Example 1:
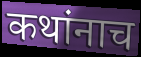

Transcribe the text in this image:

कथांनाच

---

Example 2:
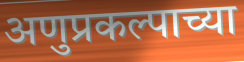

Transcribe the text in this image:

अणुप्रकल्पाच्या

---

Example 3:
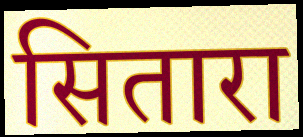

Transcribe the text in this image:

सितारा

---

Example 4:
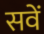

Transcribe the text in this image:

सवें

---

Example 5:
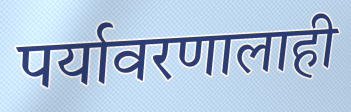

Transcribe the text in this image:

पर्यावरणालाही